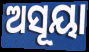
ଅସୂୟା